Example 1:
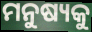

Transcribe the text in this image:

ମନୁଷ୍ୟକୁ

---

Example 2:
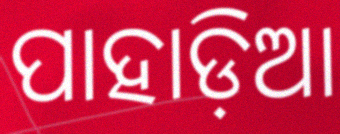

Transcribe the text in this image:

ପାହାଡ଼ିଆ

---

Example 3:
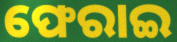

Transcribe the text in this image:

ଫେରାଇ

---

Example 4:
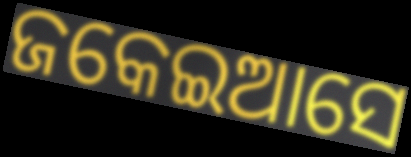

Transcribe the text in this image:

ଜକେଇଆସେ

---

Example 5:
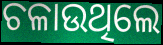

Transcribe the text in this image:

ଚଳାଉଥିଲେ